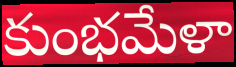
కుంభమేళా